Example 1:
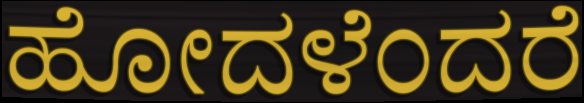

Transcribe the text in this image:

ಹೋದಳೆಂದರೆ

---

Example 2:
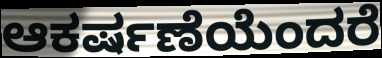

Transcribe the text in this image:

ಆಕರ್ಷಣೆಯೆಂದರೆ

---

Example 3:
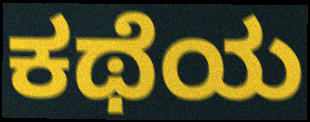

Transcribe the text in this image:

ಕಥೆಯ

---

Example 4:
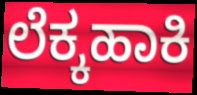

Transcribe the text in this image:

ಲೆಕ್ಕಹಾಕಿ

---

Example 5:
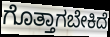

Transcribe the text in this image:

ಗೊತ್ತಾಗಬೇಕಿದೆ